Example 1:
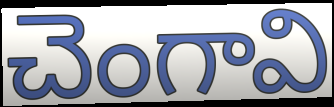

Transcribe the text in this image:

చెంగావి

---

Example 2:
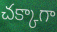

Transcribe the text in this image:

చక్కాగా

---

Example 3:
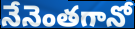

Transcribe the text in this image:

నేనెంతగానో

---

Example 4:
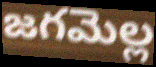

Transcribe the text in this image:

జగమెల్ల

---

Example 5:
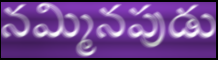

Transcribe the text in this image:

నమ్మినపుడు